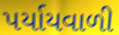
પર્યાયવાળી